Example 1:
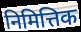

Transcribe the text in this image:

निमित्तिक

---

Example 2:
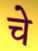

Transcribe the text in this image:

चे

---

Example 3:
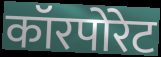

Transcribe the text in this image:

कॉरपोरेट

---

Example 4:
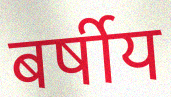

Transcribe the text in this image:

बर्षीय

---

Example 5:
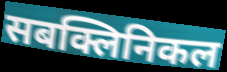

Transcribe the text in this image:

सबक्लिनिकल